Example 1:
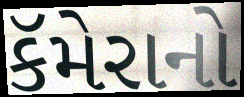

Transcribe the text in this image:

કૅમેરાનો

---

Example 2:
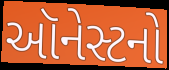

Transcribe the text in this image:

ઑનેસ્ટનો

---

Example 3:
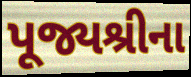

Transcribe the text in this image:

પૂજ્યશ્રીના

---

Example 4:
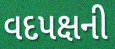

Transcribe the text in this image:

વદપક્ષની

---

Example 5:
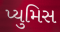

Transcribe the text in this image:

પ્યુમિસ